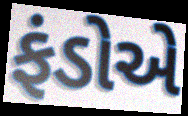
ફંડોએ